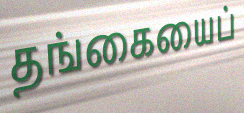
தங்கையைப்